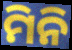
ମିନି